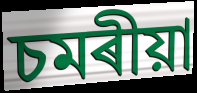
চমৰীয়া